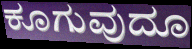
ಕೂಗುವುದೂ